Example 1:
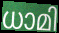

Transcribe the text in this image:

ധാമി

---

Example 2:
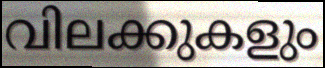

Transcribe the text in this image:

വിലക്കുകളും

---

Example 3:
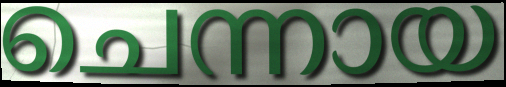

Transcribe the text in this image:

ചെന്നായ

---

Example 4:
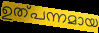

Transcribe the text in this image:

ഉത്പന്നമായ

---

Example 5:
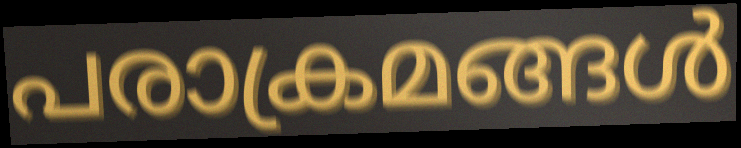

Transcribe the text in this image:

പരാക്രമങ്ങൾ